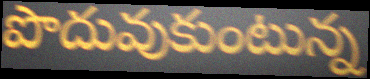
పొదువుకుంటున్న